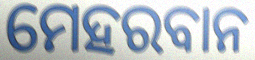
ମେହରବାନ